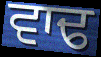
ਵਾਢ